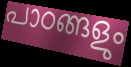
പാഠങ്ങളും